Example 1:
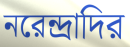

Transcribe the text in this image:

নরেন্দ্রাদির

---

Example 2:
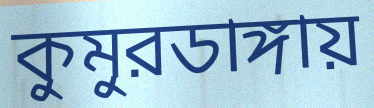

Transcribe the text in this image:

কুমুরডাঙ্গায়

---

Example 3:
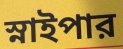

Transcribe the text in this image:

স্নাইপার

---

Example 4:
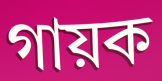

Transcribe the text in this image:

গায়ক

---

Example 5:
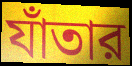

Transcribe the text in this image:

যাঁতার